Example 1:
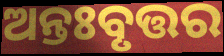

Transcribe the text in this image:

ଅନ୍ତଃବୃତ୍ତର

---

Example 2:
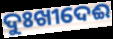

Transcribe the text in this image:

ଦୁଃଖୀଦେଈ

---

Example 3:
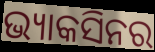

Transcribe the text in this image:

ଭ୍ୟାକସିନର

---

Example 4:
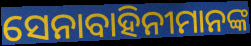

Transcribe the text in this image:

ସେନାବାହିନୀମାନଙ୍କ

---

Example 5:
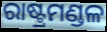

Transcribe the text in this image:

ରାଷ୍ଟ୍ରମଣ୍ଡଳ